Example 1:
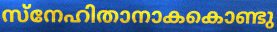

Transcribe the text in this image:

സ്നേഹിതാനാകകൊണ്ടു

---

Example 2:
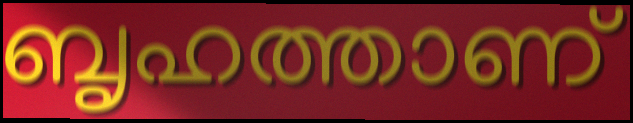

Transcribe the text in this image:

ബൃഹത്താണ്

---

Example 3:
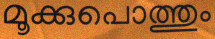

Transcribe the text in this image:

മൂക്കുപൊത്തും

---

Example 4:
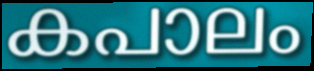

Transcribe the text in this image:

കപാലം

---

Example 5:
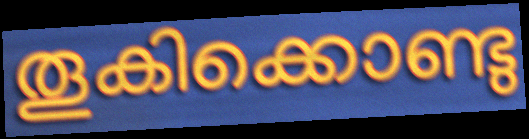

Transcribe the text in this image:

തൂകിക്കൊണ്ടു